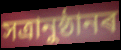
সত্ৰানুষ্ঠানৰ